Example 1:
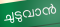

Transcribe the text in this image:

ചുടുവാൻ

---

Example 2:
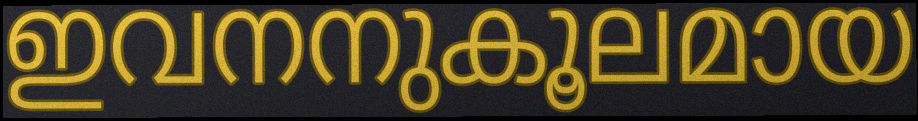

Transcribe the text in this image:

ഇവനനുകൂലമായ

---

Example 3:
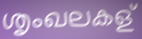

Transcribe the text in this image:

ശൃംഖലകള്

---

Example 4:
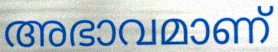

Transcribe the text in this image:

അഭാവമാണ്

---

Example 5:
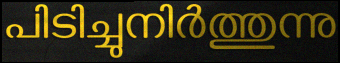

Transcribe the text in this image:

പിടിച്ചുനിർത്തുന്നു